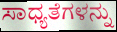
ಸಾಧ್ಯತೆಗಳನ್ನು